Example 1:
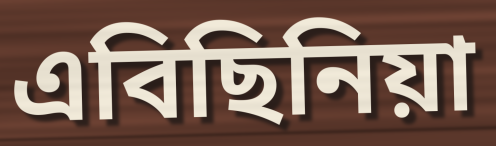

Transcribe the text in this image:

এবিছিনিয়া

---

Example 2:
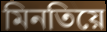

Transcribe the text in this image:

মিনতিয়ে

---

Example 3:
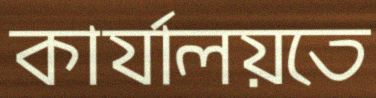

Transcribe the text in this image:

কাৰ্যালয়তে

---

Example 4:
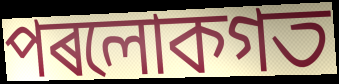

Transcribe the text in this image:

পৰলোকগত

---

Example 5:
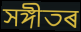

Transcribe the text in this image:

সঙ্গীতৰ